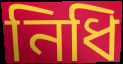
নিধি